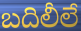
బదిలీలే